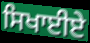
ਸਿਖਾਈਏ